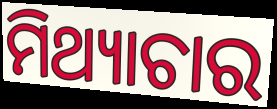
ମିଥ୍ୟାଚାର